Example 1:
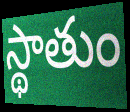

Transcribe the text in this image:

స్థాతుం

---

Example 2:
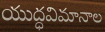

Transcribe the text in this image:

యుద్ధవిమానాల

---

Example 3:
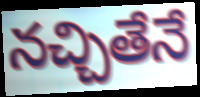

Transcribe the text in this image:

నచ్చితేనే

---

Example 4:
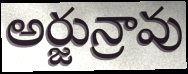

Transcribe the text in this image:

అర్జున్రావు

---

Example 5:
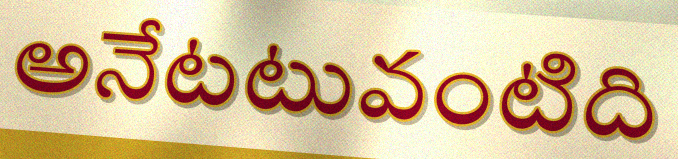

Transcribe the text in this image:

అనేటటువంటిది